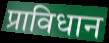
प्राविधान